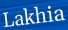
Lakhia